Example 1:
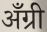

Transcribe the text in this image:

अँग्री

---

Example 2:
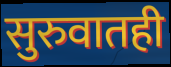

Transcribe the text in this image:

सुरुवातही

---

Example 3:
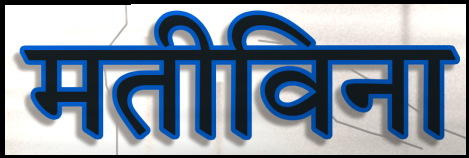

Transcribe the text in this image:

मतीविना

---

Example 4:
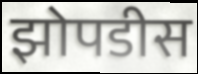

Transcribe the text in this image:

झोपडीस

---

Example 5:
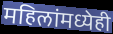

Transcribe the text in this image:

महिलांमध्येही